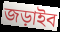
জড়াইব